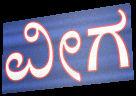
ವೀಗ